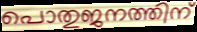
പൊതുജനത്തിന്